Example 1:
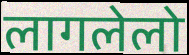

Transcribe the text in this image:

लागलेलो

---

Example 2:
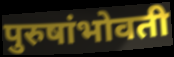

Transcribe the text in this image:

पुरुषांभोवती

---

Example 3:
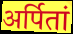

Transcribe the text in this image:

अर्पितां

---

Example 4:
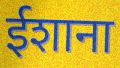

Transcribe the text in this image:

ईशाना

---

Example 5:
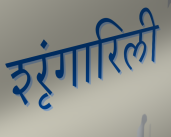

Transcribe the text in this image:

श्रृंगारिली